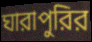
ঘারাপুরির